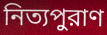
নিত্যপুরাণ